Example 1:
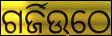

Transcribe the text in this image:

ଗର୍ଜିଉଠେ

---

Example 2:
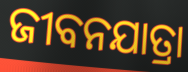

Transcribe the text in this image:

ଜୀବନଯାତ୍ରା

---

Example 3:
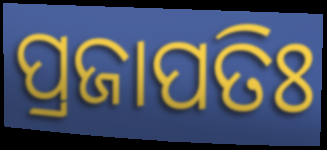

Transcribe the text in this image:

ପ୍ରଜାପତିଃ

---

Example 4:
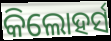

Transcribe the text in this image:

କିଲୋହର୍ସ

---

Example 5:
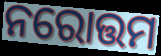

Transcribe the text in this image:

ନରୋତ୍ତମ